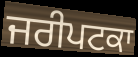
ਜਰੀਪਟਕਾ